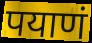
पयाणं